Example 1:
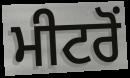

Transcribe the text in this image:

ਮੀਟਰੋਂ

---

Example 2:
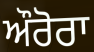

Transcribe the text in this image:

ਔਰੋਰਾ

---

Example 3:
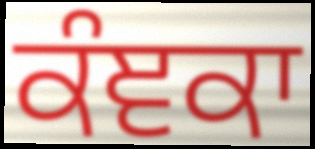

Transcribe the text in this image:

ਕੰਞਕਾ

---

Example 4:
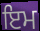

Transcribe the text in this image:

ਇਮ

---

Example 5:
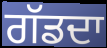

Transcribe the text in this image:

ਗੱਡਦਾ